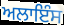
ਅਲਾਇੰਸ